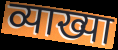
व्याख्‍या